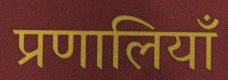
प्रणालियाँ